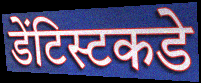
डेंटिस्टकडे